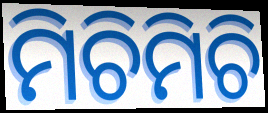
ମିଚିମିଚି